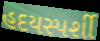
હદયસ્પર્શી